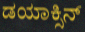
ಡಯಾಕ್ಸಿನ್